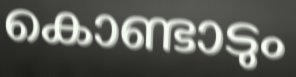
കൊണ്ടാടും